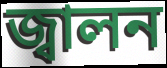
জ্বালন